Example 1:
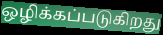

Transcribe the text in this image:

ஒழிக்கப்படுகிறது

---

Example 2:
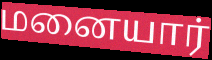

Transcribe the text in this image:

மனையார்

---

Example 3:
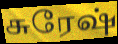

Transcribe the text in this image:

சுரேஷ்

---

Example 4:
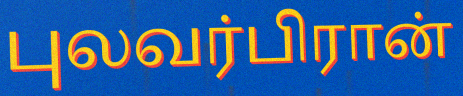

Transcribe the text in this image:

புலவர்பிரான்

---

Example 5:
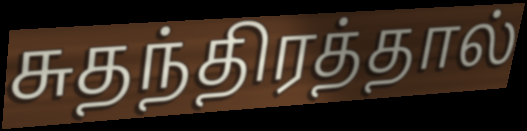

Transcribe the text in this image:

சுதந்திரத்தால்